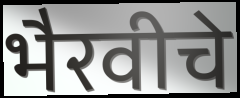
भैरवीचे